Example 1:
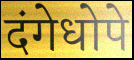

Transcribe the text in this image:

दंगेधोपे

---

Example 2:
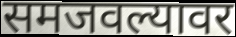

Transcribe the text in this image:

समजवल्यावर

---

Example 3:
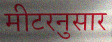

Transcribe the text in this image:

मीटरनुसार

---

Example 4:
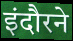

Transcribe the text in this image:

इंदौरने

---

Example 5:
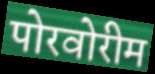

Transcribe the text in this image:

पोरवोरीम